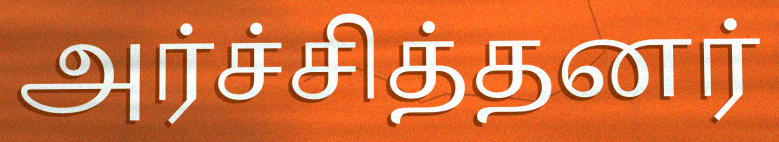
அர்ச்சித்தனர்